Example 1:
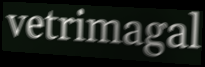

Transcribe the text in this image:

vetrimagal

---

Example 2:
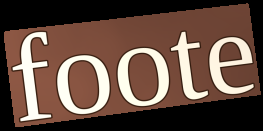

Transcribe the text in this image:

foote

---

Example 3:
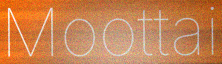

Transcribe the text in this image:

Moottai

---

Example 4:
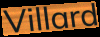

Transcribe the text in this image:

Villard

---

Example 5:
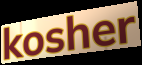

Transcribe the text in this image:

kosher